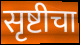
सृष्टीचा